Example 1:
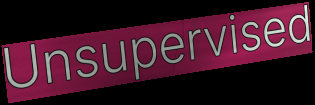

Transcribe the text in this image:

Unsupervised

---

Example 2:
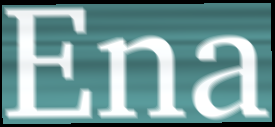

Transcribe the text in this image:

Ena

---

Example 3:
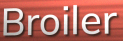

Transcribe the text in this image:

Broiler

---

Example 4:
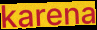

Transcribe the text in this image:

karena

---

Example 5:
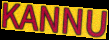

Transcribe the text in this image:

KANNU